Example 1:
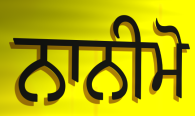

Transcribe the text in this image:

ਨਾਨੀਮੋ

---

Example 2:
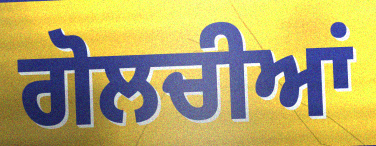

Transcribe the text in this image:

ਗੋਲਚੀਆਂ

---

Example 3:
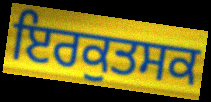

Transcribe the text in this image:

ਇਰਕੁਤਸਕ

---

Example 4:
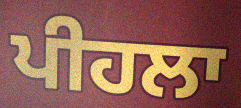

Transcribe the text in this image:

ਪੀਹਲਾ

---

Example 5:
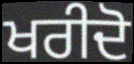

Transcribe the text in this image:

ਖਰੀਦੋ